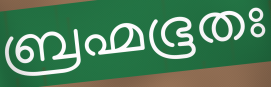
ബ്രഹ്മഭൂതഃ